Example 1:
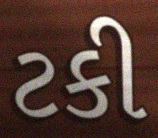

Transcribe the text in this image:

ટકી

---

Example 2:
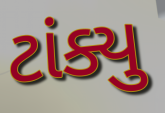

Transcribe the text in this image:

ટાંક્યુ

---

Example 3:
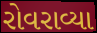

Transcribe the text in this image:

રોવરાવ્યા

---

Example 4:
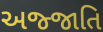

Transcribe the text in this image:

અજ્જાતિ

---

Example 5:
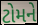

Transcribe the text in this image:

ટોમને